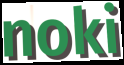
noki